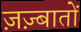
ज़ज़्बातों